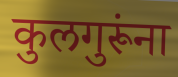
कुलगुरूंना